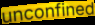
unconfined